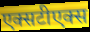
एक्सटीएक्स